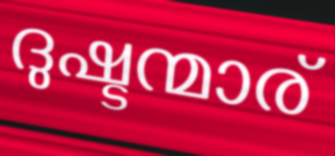
ദുഷ്ടന്മാര്